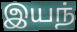
இயந்